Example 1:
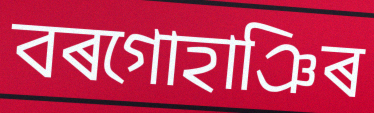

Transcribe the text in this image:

বৰগোহাঞিৰ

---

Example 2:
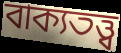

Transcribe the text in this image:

বাক্যতত্ত্ব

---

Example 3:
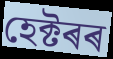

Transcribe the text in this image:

হেক্টৰৰ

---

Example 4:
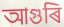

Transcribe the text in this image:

আগুৰি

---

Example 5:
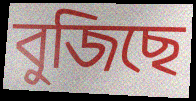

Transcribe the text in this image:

বুজিছে